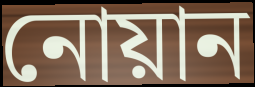
নোয়ান